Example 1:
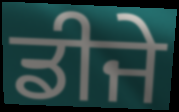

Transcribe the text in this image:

ਡੀਜੇ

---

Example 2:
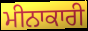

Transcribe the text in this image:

ਮੀਨਾਕਾਰੀ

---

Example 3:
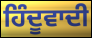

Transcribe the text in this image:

ਹਿੰਦੂਵਾਦੀ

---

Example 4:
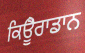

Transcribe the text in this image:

ਕਿਊੈਰਾਡਾਨ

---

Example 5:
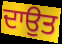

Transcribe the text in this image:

ਦਾਉਤ